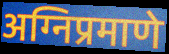
अग्निप्रमाणे